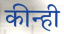
कीन्ही